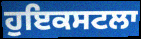
ਹੁਇਕਸਟਲਾ